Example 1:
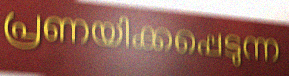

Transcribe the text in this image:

പ്രണയിക്കപ്പെടുന്ന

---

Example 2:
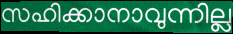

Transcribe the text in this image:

സഹിക്കാനാവുന്നില്ല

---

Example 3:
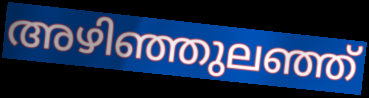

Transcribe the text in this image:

അഴിഞ്ഞുലഞ്ഞ്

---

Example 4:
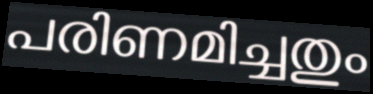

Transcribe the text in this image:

പരിണമിച്ചതും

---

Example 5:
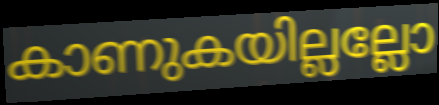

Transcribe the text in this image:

കാണുകയില്ലല്ലോ